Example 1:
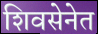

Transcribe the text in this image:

शिवसेनेत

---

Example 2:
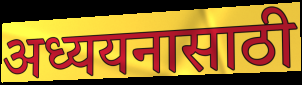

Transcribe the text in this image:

अध्ययनासाठी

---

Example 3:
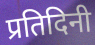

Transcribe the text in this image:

प्रतिदिनी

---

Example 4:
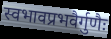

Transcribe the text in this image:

स्वभावप्रभवैर्गुणैः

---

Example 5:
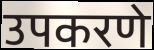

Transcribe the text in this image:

उपकरणे